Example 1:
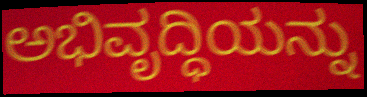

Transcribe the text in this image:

ಅಭಿವೃದ್ಧಿಯನ್ನು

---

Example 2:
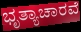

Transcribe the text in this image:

ಭೃತ್ಯಾಚಾರವೆ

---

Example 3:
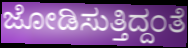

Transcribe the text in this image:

ಜೋಡಿಸುತ್ತಿದ್ದಂತೆ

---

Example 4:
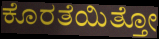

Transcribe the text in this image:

ಕೊರತೆಯಿತ್ತೋ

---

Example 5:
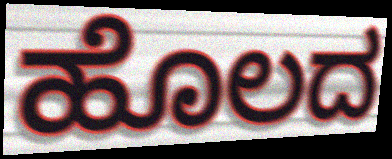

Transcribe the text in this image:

ಹೊಲದ